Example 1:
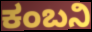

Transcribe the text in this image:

ಕಂಬನಿ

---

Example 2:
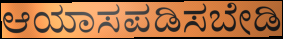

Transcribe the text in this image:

ಆಯಾಸಪಡಿಸಬೇಡಿ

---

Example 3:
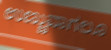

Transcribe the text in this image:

ಉಣ್ಣುವಾಗಲೂ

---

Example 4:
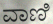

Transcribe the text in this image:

ವಾಣಿ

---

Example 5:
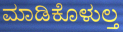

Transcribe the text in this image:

ಮಾಡಿಕೊಳುಲ್ತ